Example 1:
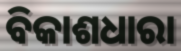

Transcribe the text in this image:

ବିକାଶଧାରା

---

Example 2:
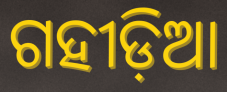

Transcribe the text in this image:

ଗହୀଡ଼ିଆ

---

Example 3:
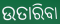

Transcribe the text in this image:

ଉତାରିବା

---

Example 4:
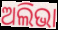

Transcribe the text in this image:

ଅଲିଭା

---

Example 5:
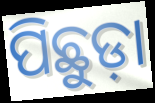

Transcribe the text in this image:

ପିଛୁଡ଼ା